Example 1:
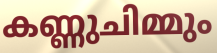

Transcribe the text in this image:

കണ്ണുചിമ്മും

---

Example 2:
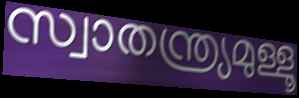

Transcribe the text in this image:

സ്വാതന്ത്ര്യമുള്ളൂ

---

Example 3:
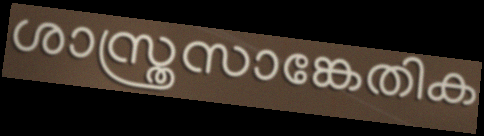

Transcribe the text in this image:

ശാസ്ത്രസാങ്കേതിക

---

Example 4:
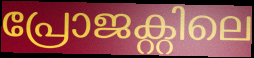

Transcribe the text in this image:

പ്രോജക്റ്റിലെ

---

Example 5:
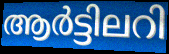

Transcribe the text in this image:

ആർട്ടിലറി